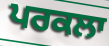
ਪਰਕਲਾ